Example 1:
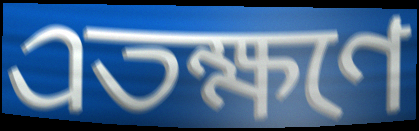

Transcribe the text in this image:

এতক্ষণে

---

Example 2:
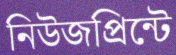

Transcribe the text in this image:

নিউজপ্রিন্টে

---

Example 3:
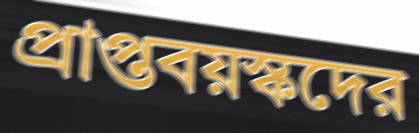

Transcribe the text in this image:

প্রাপ্তবয়স্কদের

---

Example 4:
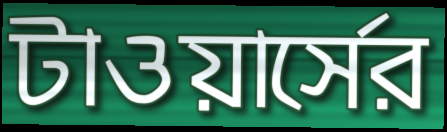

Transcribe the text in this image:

টাওয়ার্সের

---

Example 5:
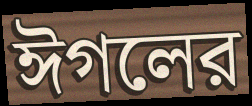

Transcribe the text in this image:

ঈগলের